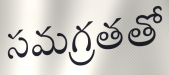
సమగ్రతతో